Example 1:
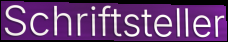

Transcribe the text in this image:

Schriftsteller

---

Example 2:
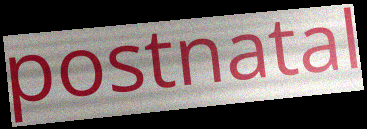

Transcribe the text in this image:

postnatal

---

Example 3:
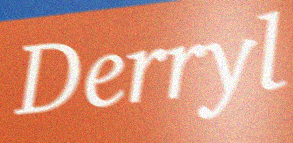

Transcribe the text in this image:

Derryl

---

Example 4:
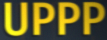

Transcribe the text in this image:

UPPP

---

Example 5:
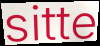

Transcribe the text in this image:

sitte